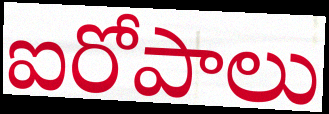
ఐరోపాలు